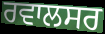
ਰਵਾਲਸਰ